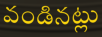
వండినట్లు